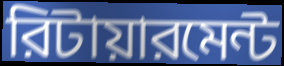
রিটায়ারমেন্ট